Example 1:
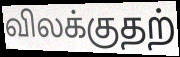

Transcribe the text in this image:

விலக்குதற்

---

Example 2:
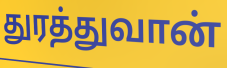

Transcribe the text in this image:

துரத்துவான்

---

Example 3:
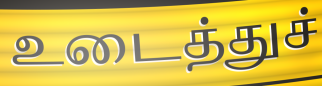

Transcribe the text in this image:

உடைத்துச்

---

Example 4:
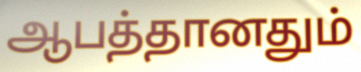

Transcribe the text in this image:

ஆபத்தானதும்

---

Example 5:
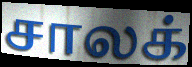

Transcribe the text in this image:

சாலக்